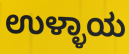
ಉಳ್ಳಾಯ